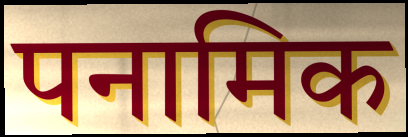
पनामिक